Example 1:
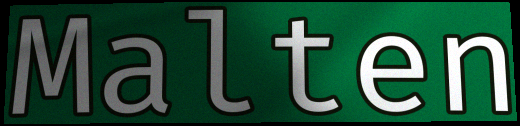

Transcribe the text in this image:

Malten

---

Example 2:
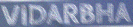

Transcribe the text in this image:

VIDARBHA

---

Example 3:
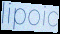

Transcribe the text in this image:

lipoic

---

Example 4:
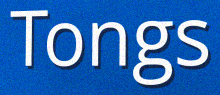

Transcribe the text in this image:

Tongs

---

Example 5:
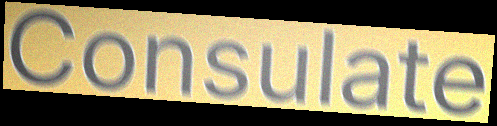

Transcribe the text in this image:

Consulate